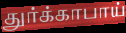
துர்க்காபாய்